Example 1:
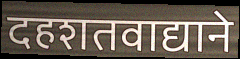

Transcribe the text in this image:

दहशतवाद्याने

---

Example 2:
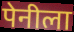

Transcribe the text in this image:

पेनीला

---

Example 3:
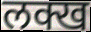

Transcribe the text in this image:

लक्ख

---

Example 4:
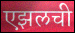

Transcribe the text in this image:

एझलची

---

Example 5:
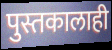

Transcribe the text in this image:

पुस्तकालाही